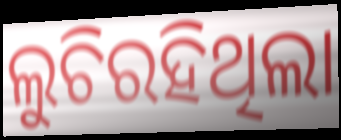
ଲୁଚିରହିଥିଲା